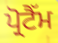
ਪ੍ਰੋਟੈੱਮ